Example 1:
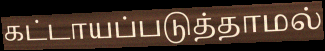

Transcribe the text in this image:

கட்டாயப்படுத்தாமல்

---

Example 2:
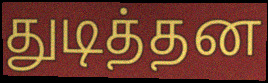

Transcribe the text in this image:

துடித்தன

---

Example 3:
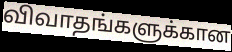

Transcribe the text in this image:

விவாதங்களுக்கான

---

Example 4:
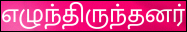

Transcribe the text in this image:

எழுந்திருந்தனர்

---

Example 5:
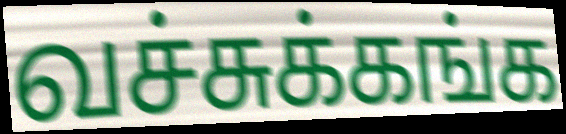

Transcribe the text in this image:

வச்சுக்கங்க